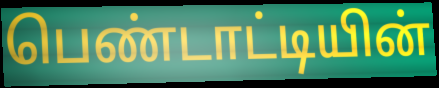
பெண்டாட்டியின்